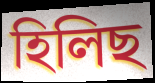
হিলিছ